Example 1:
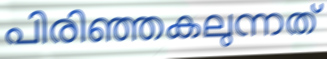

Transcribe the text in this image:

പിരിഞ്ഞകലുന്നത്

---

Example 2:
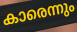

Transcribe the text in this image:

കാരെന്നും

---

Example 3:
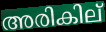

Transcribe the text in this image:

അരികില്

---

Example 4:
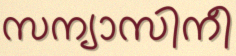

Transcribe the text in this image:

സന്യാസിനീ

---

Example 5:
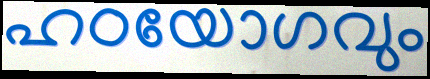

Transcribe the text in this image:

ഹഠയോഗവും